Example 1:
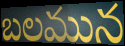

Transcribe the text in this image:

బలమున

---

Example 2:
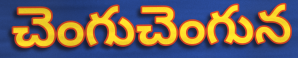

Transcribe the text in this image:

చెంగుచెంగున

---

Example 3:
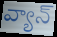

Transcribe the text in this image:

వ్యాన్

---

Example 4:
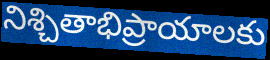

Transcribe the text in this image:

నిశ్చితాభిప్రాయాలకు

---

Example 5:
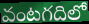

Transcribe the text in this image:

వంటగదిలో